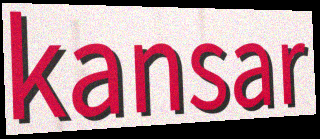
kansar